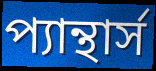
প্যান্থার্স